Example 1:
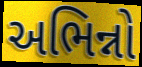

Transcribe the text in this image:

અભિન્નો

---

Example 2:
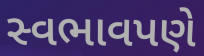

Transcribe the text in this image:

સ્વભાવપણે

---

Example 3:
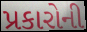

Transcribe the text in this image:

પ્રકારોની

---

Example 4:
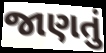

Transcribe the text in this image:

જાણતું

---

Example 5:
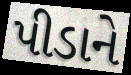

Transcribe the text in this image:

પીડાને